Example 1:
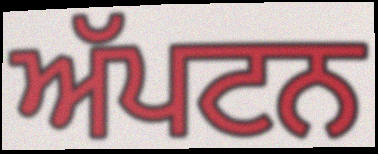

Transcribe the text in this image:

ਅੱਪਟਨ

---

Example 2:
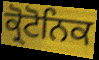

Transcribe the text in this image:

ਕ੍ਰੋਟੋਨਿਕ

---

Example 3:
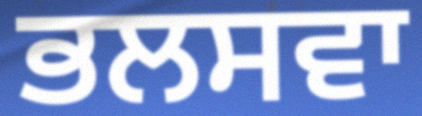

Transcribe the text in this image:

ਭਲਸਵਾ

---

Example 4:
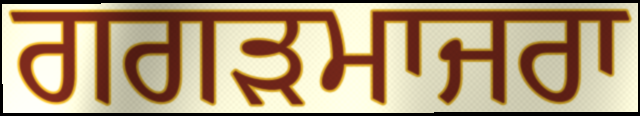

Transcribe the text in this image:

ਗਗੜਮਾਜਰਾ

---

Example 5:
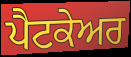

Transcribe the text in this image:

ਪੈਟਕੇਅਰ